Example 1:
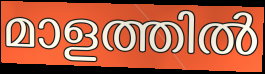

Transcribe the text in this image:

മാളത്തിൽ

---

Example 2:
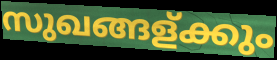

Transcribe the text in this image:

സുഖങ്ങള്ക്കും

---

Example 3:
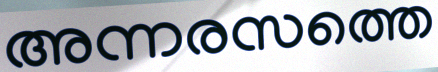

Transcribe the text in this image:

അന്നരസത്തെ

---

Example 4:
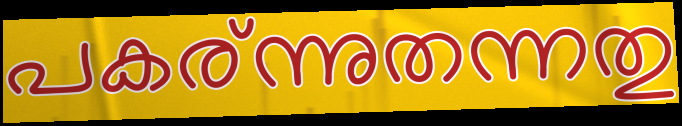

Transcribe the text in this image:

പകര്ന്നുതന്നതു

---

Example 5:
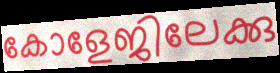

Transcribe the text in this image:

കോളേജിലേക്കു